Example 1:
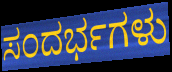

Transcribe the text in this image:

ಸಂದರ್ಭಗಳು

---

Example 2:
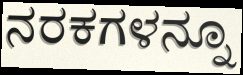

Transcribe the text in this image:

ನರಕಗಳನ್ನೂ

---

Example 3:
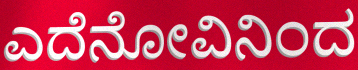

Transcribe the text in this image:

ಎದೆನೋವಿನಿಂದ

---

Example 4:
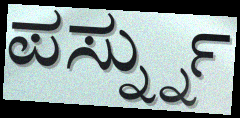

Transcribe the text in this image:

ಪರ್ಸ್ನ್ನು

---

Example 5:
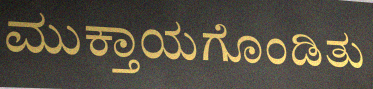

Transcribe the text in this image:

ಮುಕ್ತಾಯಗೊಂಡಿತು